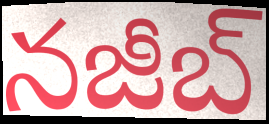
నజీబ్